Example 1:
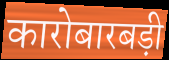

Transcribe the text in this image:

कारोबारबड़ी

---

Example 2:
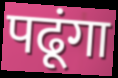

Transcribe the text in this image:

पढूंगा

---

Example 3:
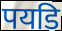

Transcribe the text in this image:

पयडि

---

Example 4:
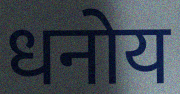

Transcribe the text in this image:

धनोय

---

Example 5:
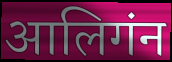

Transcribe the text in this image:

आलिगंन